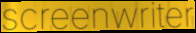
screenwriter